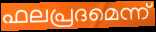
ഫലപ്രദമെന്ന്